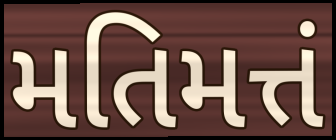
મતિમત્તં